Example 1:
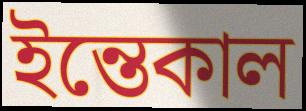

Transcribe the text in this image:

ইন্তেকাল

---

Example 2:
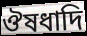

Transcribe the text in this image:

ঔষধাদি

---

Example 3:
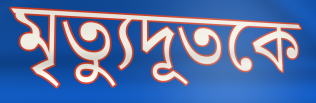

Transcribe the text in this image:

মৃত্যুদূতকে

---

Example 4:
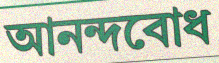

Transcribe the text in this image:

আনন্দবোধ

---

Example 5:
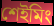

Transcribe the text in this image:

শেইমিং